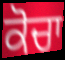
ਕੋਚਾ